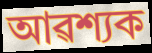
আৱশ্যক